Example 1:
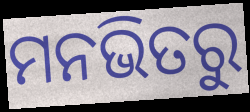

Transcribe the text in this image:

ମନଭିତରୁ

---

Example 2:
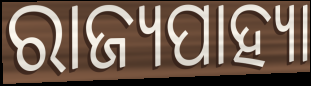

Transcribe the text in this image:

ରାଜ୍ୟପାହ୍ୟା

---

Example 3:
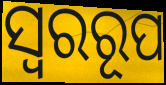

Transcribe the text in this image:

ସ୍ୱରରୂପ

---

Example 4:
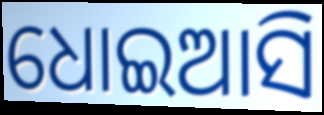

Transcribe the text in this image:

ଧୋଇଆସି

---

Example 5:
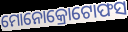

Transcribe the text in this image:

ମୋନୋକ୍ରୋଟୋଫସ